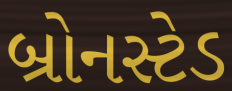
બ્રોનસ્ટેડ